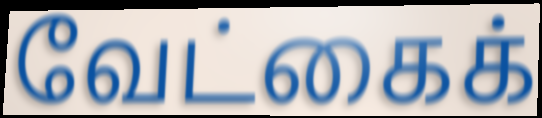
வேட்கைக்